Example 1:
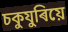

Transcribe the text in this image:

চকুযুৰিয়ে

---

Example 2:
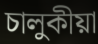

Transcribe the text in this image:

চালুকীয়া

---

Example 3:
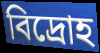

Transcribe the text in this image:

বিদ্ৰোহ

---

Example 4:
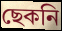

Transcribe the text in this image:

ছেকনি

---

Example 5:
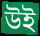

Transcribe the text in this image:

উই